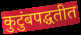
कुटुंबपद्धतीत